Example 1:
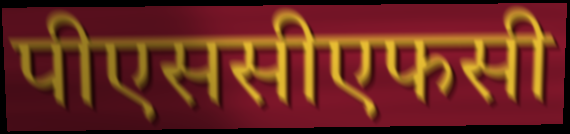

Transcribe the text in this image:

पीएससीएफसी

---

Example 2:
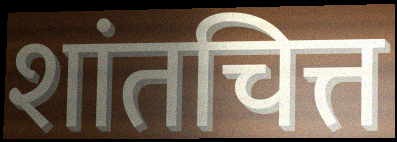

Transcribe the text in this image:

शांतचित्त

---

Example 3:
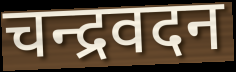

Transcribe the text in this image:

चन्द्रवदन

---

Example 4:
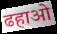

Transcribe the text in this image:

ढहाओ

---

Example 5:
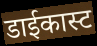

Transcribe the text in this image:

डाईकास्ट